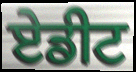
ਏਡੀਟ